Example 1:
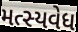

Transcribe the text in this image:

મત્સ્યવેધ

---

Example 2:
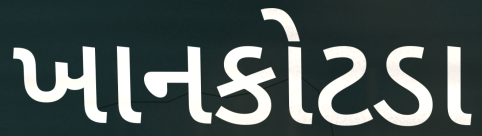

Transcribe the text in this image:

ખાનકોટડા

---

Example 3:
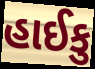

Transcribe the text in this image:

હાઈકુ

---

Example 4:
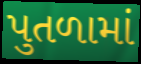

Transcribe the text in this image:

પુતળામાં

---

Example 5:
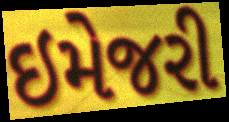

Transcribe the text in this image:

ઇમેજરી